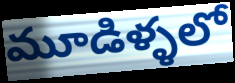
మూడిళ్ళలో